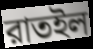
রাতইল